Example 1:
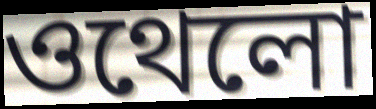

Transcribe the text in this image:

ওথেলো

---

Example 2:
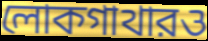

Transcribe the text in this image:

লোকগাথারও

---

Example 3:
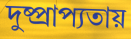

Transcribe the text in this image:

দুষ্প্রাপ্যতায়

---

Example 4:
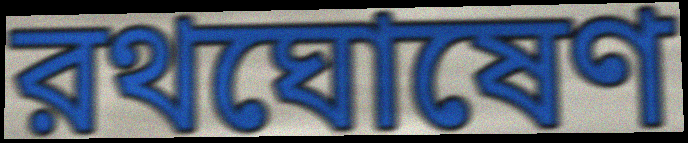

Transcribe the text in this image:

রথঘোষেণ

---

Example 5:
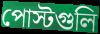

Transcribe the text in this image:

পোস্টগুলি